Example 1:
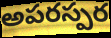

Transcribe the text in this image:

అపరస్పర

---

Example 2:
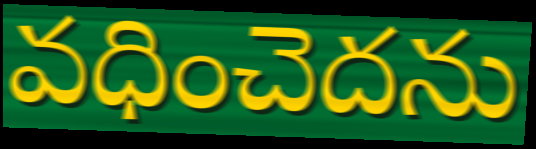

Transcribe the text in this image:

వధించెదను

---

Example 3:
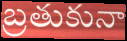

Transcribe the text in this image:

బ్రతుకునా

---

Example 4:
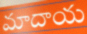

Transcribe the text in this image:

మాదాయ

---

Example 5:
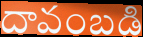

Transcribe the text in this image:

దావంబడి